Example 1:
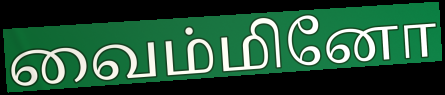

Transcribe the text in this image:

வைம்மினோ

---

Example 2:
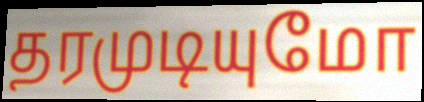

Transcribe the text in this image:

தரமுடியுமோ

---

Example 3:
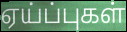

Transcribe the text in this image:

ஏய்ப்புகள்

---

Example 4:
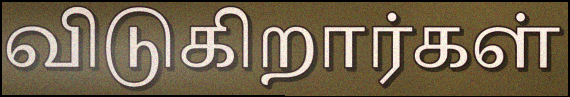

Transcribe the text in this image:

விடுகிறார்கள்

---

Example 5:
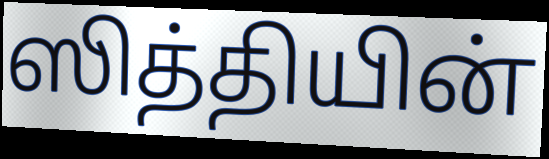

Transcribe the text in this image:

ஸித்தியின்